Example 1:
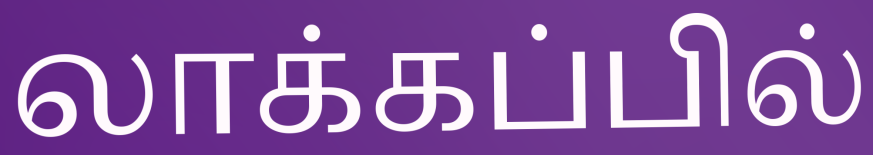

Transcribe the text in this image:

லாக்கப்பில்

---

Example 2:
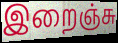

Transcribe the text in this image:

இறைஞ்சு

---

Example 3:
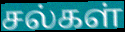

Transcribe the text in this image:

சல்கள்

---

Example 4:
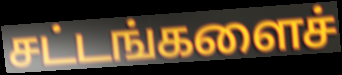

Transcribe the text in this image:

சட்டங்களைச்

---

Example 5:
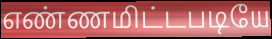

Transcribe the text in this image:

எண்ணமிட்டபடியே